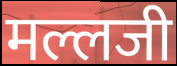
मल्लजी